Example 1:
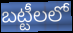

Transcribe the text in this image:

బట్టీలలో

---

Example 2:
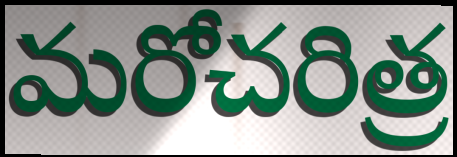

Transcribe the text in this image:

మరోచరిత్ర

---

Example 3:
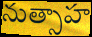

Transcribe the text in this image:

నుత్సాహ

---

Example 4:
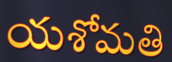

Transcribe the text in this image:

యశోమతి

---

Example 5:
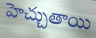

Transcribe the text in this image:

హెచ్చుతాయి